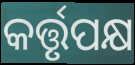
କର୍ତ୍ତୃପକ୍ଷ